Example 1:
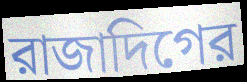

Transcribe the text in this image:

রাজাদিগের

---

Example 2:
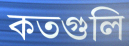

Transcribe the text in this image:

কতগুলি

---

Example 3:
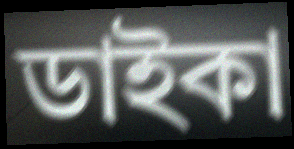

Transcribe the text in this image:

ডাইকা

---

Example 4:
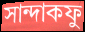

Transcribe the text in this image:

সান্দাকফু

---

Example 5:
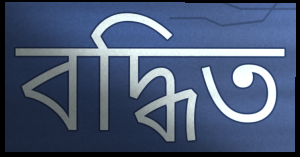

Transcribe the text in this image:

বদ্ধিত